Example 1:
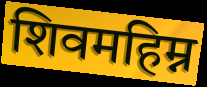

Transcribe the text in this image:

शिवमहिम्न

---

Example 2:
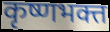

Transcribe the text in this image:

कृष्णभक्त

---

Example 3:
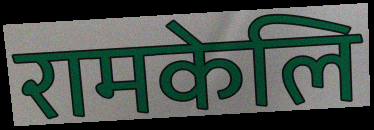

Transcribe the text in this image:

रामकेलि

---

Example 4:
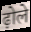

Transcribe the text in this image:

ढ़ोले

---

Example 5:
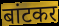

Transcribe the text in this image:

बांटकर